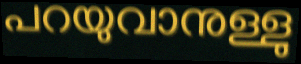
പറയുവാനുള്ളു